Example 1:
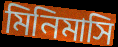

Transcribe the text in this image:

মিনিমাসি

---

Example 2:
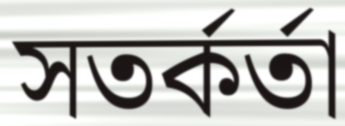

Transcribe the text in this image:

সতর্কর্তা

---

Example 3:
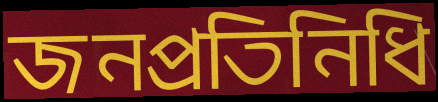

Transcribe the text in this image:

জনপ্রতিনিধি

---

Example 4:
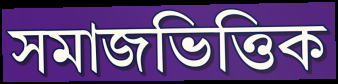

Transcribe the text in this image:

সমাজভিত্তিক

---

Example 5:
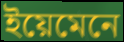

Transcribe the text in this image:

ইয়েমেনে